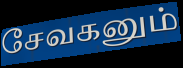
சேவகனும்